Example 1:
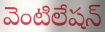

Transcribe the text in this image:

వెంటిలేషన్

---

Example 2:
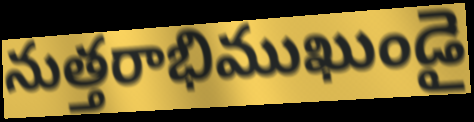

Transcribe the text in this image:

నుత్తరాభిముఖుండై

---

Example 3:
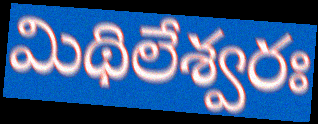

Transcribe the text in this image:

మిథిలేశ్వరః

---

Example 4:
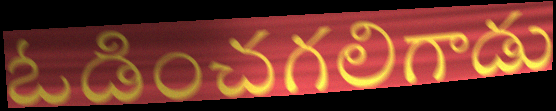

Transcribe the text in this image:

ఓడించగలిగాడు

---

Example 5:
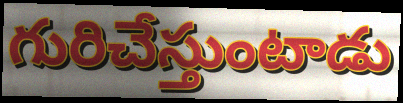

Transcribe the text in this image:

గురిచేస్తుంటాడు